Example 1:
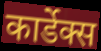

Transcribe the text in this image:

कार्डेक्स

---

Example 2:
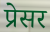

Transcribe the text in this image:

प्रेसर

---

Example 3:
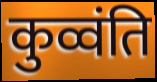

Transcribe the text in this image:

कुव्वंति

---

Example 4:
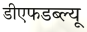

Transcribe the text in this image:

डीएफडब्ल्यू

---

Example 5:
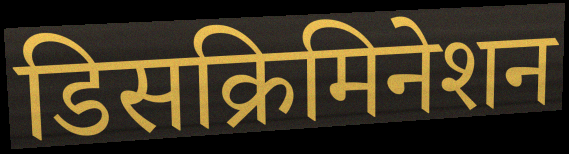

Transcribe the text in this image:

डिसक्रिमिनेशन